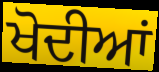
ਖੋਦੀਆਂ